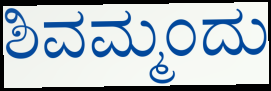
ಶಿವಮ್ಮಂದು